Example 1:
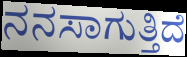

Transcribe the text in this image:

ನನಸಾಗುತ್ತಿದೆ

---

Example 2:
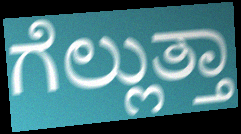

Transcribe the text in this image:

ಗೆಲ್ಲುತ್ತಾ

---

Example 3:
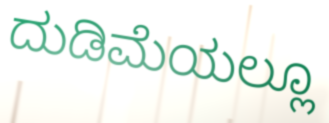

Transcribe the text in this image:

ದುಡಿಮೆಯಲ್ಲೂ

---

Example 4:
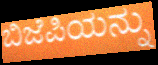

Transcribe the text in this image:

ಬಿಜೆಪಿಯನ್ನು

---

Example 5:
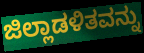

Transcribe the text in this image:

ಜಿಲ್ಲಾಡಳಿತವನ್ನು